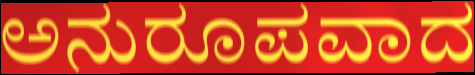
ಅನುರೂಪವಾದ